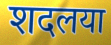
शदलया